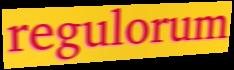
regulorum